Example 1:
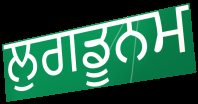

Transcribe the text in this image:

ਲੁਗਡੂਨਮ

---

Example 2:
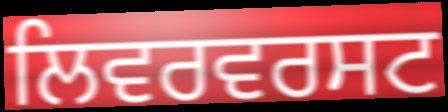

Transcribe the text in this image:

ਲਿਵਰਵਰਸਟ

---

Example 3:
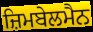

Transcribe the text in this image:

ਜ਼ਿਮਬੇਲਮੈਨ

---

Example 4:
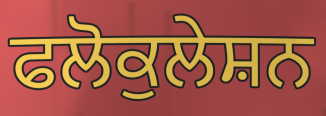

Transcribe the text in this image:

ਫਲੋਕੁਲੇਸ਼ਨ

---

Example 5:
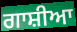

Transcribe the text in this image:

ਗਾਸ਼ੀਆ